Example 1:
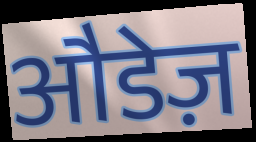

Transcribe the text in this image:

औडेज़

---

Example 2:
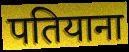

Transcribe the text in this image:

पतियाना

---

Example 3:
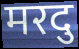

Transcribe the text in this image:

मरदु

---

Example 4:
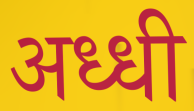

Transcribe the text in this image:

अध्धी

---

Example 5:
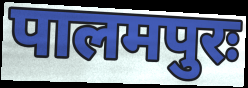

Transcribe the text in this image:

पालमपुरः